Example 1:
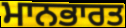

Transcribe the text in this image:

ਮਾਨਭਾਰਤ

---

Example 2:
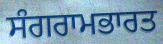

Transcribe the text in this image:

ਸੰਗਰਾਮਭਾਰਤ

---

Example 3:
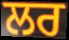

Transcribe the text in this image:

ਲਰ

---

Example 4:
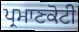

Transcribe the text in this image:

ਪ੍ਰਮਾਣਕੋਟੀ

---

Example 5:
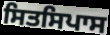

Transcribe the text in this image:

ਸਿਤਸਿਪਾਸ